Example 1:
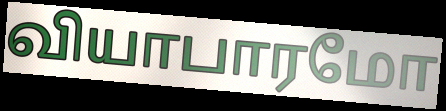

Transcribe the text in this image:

வியாபாரமோ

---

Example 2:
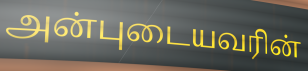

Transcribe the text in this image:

அன்புடையவரின்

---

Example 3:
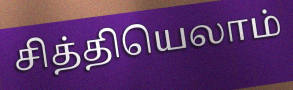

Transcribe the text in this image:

சித்தியெலாம்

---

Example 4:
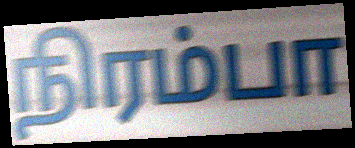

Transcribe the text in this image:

நிரம்பா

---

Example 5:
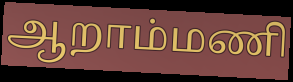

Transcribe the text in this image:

ஆறாம்மணி